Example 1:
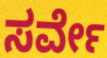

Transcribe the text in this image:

ಸರ್ವೇ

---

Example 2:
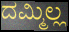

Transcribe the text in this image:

ದಮ್ಮಿಲ್ಲ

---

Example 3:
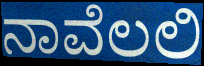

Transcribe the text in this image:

ನಾವೆಲಲಿ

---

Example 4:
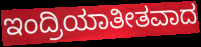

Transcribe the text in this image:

ಇಂದ್ರಿಯಾತೀತವಾದ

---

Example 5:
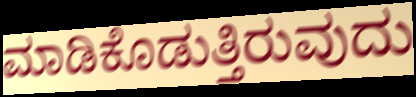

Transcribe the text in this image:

ಮಾಡಿಕೊಡುತ್ತಿರುವುದು